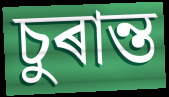
চুৰান্ত